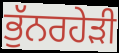
ਭੁੱਨਰਹੇੜੀ